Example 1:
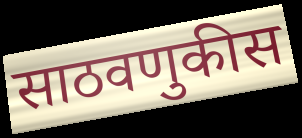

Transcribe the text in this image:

साठवणुकीस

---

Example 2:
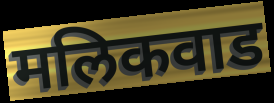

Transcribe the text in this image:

मलिकवाड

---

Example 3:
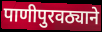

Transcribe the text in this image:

पाणीपुरवठ्याने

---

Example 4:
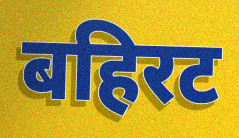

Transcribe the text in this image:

बहिरट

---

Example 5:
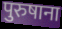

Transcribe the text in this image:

पुरुषाना